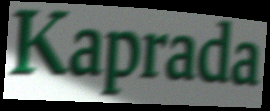
Kaprada